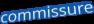
commissure